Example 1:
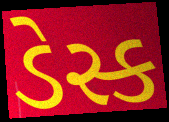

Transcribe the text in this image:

ડેસ્ક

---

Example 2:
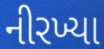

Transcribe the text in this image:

નીરખ્યા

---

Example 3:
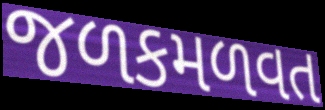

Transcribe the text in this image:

જળકમળવત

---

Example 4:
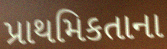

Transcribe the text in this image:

પ્રાથમિકતાના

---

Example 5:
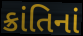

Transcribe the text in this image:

ક્રાંતિનાં